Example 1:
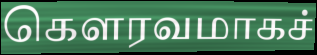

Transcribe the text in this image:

கௌரவமாகச்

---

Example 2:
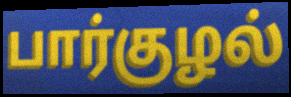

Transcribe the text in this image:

பார்குழல்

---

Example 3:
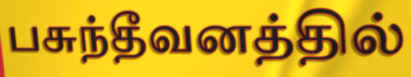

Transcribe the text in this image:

பசுந்தீவனத்தில்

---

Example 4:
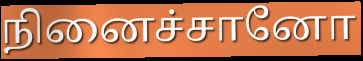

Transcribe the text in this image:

நினைச்சானோ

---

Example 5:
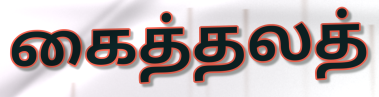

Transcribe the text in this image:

கைத்தலத்